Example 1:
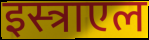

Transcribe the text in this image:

इस्त्राएल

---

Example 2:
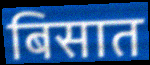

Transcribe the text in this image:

बिसात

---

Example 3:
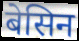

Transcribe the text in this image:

बेसिन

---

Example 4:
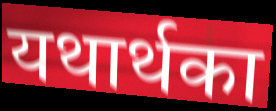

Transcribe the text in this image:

यथार्थका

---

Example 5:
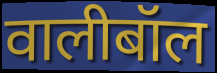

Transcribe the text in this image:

वालीबॉल